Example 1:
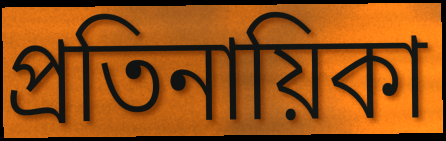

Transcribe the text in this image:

প্রতিনায়িকা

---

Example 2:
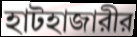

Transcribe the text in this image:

হাটহাজারীর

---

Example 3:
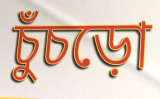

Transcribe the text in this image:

চুঁচড়ো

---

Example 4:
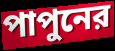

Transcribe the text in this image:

পাপুনের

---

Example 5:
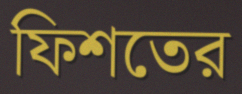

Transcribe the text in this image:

ফিশতের